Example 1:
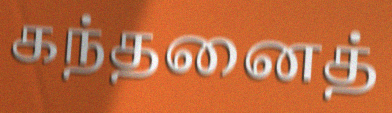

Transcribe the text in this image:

கந்தனைத்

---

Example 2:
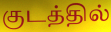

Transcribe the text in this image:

குடத்தில்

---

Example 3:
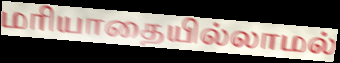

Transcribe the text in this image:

மரியாதையில்லாமல்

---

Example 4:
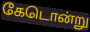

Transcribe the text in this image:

கேடொன்று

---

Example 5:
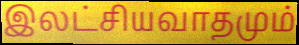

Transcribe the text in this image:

இலட்சியவாதமும்